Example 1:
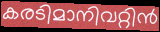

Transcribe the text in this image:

കരടിമാനിവറ്റിൻ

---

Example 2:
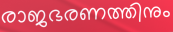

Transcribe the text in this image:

രാജഭരണത്തിനും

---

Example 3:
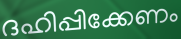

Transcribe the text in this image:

ദഹിപ്പിക്കേണം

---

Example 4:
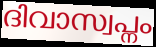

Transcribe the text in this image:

ദിവാസ്വപ്നം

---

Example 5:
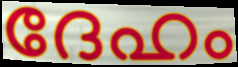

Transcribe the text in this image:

ദേഹം